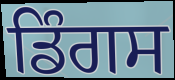
ਡਿੰਗਸ